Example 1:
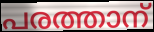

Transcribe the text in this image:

പരത്താന്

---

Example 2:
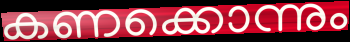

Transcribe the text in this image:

കണക്കൊന്നും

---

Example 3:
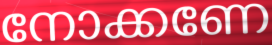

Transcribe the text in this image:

നോക്കണേ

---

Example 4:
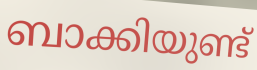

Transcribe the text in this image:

ബാക്കിയുണ്ട്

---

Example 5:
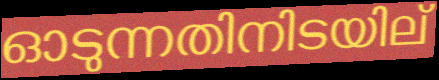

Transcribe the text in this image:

ഓടുന്നതിനിടയില്